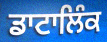
ਡਾਟਾਲਿੰਕ